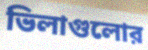
ভিলাগুলোর